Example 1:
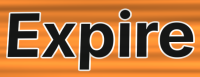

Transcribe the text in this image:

Expire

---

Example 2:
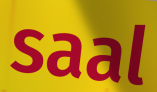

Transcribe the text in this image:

saal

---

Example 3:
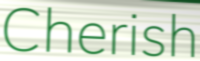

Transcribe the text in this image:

Cherish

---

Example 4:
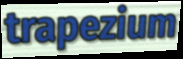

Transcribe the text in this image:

trapezium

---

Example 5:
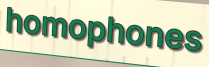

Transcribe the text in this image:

homophones